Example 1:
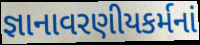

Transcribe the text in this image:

જ્ઞાનાવરણીયકર્મનાં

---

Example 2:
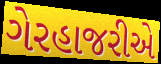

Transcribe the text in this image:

ગેરહાજરીએ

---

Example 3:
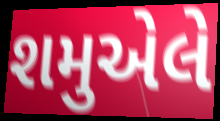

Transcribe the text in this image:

શમુએલે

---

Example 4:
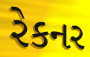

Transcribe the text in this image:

રેકનર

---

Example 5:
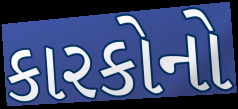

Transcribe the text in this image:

કારકોનો